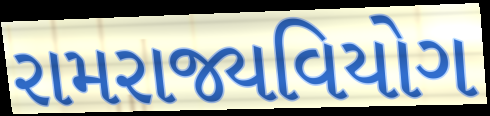
રામરાજ્યવિયોગ